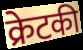
क्रेटकी